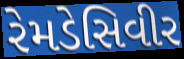
રેમડેસિવીર